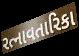
રત્નાવતારિકા